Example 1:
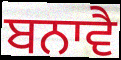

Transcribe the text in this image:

ਬਨਾਵੈ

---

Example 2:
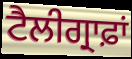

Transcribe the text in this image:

ਟੈਲੀਗ੍ਰਾਫ਼ਾਂ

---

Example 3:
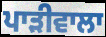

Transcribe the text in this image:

ਪਾੜੀਵਾਲਾ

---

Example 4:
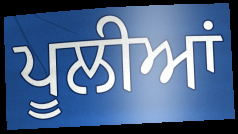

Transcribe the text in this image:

ਪੂਲੀਆਂ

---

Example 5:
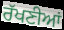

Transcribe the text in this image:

ਰੱਖਣੀਆਂ